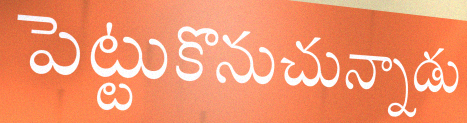
పెట్టుకొనుచున్నాడు